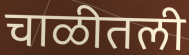
चाळीतली